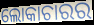
ଲୋକାଚାରର